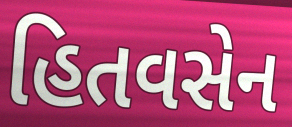
હિતવસેન